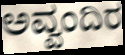
ಅವ್ವಂದಿರ